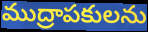
ముద్రాపకులను